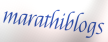
marathiblogs